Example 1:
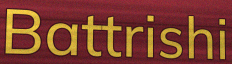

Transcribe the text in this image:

Battrishi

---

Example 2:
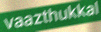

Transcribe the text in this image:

vaazthukkal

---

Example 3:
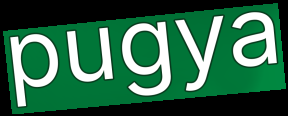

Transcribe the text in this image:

pugya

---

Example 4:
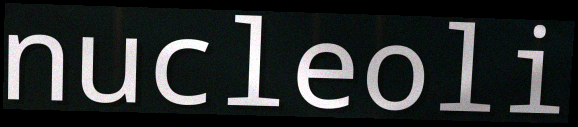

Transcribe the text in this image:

nucleoli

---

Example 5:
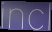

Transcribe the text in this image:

incl